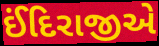
ઈંદિરાજીએ